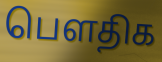
பெளதிக